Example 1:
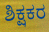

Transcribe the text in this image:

ಶಿಕ್ಷಕರ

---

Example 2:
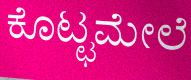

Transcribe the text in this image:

ಕೊಟ್ಟಮೇಲೆ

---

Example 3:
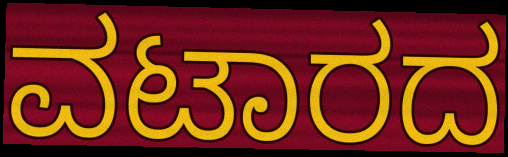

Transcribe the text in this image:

ವಟಾರದ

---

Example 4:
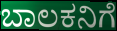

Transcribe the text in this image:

ಬಾಲಕನಿಗೆ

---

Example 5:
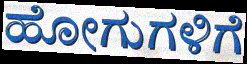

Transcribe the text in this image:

ಹೋಗುಗಳಿಗೆ